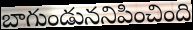
బాగుండుననిపించింది